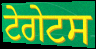
ਟੇਗੇਟਸ